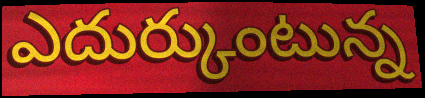
ఎదుర్కుంటున్న